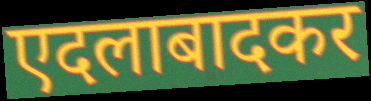
एदलाबादकर